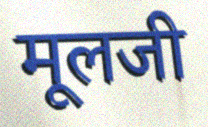
मूलजी